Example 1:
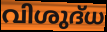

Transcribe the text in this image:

വിശുദ്‌ധ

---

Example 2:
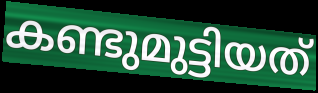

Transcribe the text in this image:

കണ്ടുമുട്ടിയത്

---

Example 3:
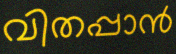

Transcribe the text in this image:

വിതപ്പാൻ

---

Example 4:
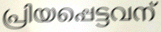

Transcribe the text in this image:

പ്രിയപ്പെട്ടവന്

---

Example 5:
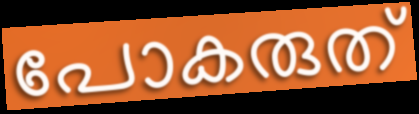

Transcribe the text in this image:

പോകരുത്